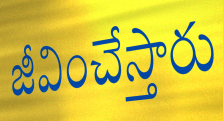
జీవించేస్తారు